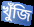
খুঁজি